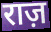
राज़